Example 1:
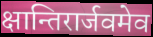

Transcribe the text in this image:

क्षान्तिरार्जवमेव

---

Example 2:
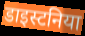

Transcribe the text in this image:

डाइस्टनिया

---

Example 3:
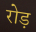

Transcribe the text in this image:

रोड़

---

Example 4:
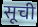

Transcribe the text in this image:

सूची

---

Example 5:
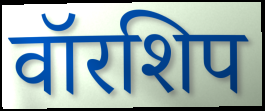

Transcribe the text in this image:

वॉरशिप